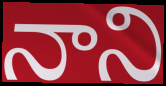
నాని